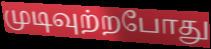
முடிவுற்றபோது